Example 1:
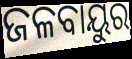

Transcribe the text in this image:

ଜଳବାୟୁର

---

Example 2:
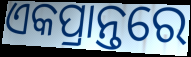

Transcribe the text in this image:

ଏକପ୍ରାନ୍ତରେ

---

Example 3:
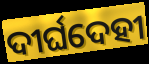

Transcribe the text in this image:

ଦୀର୍ଘଦେହୀ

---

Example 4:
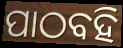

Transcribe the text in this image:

ପାଠବହି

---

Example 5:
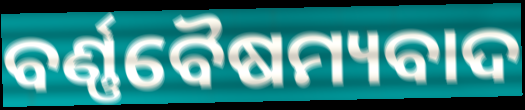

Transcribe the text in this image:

ବର୍ଣ୍ଣବୈଷମ୍ୟବାଦ